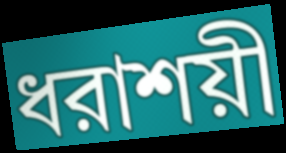
ধরাশয়ী